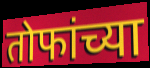
तोफांच्या